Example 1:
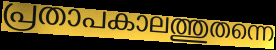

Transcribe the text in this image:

പ്രതാപകാലത്തുതന്നെ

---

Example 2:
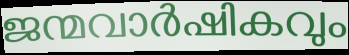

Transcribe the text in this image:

ജന്മവാർഷികവും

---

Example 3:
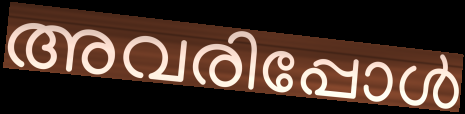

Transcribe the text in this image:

അവരിപ്പോൾ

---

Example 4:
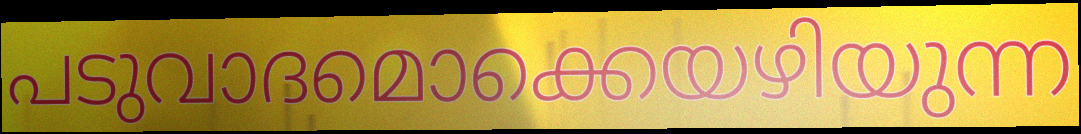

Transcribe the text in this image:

പടുവാദമൊക്കെയഴിയുന്ന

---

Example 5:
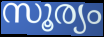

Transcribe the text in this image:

സൂര്യം